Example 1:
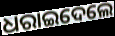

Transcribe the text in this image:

ଧରାଇଦେଲେ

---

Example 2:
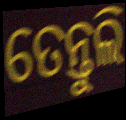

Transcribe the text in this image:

ତେନ୍ତୁଲି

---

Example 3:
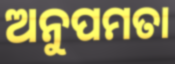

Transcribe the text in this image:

ଅନୁପମତା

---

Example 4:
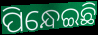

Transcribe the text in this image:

ପିନ୍ଧେଇଛି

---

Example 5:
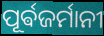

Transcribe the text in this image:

ପୂର୍ଵଜର୍ମାନୀ